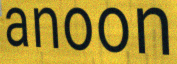
anoon